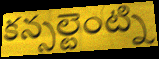
కన్సల్టెంట్ని